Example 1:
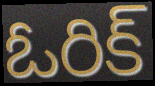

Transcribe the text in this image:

ఓరిక్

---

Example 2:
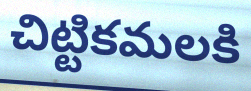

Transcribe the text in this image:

చిట్టికమలకి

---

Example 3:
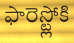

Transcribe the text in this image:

ఫారెస్ట్లోకి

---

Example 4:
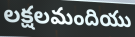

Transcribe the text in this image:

లక్షలమందియు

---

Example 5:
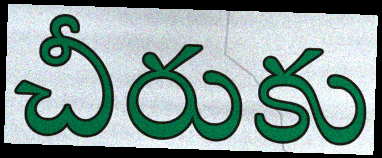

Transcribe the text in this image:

చీరుకు